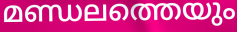
മണ്ഡലത്തെയും